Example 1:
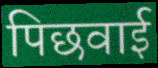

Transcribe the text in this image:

पिछवाई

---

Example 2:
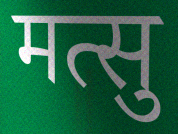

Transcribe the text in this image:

मत्सु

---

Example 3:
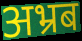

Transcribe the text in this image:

अभ्रब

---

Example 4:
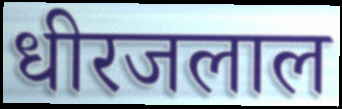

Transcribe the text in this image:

धीरजलाल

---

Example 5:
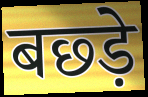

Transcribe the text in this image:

बछ्ड़े